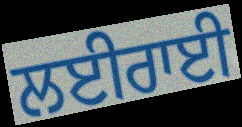
ਲਈਰਾਈ